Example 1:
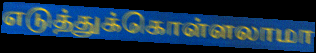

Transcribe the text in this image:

எடுத்துக்கொள்ளலாமா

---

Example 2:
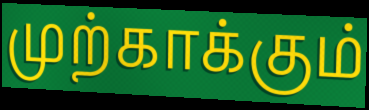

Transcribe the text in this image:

முற்காக்கும்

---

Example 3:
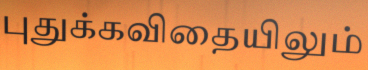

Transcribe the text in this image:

புதுக்கவிதையிலும்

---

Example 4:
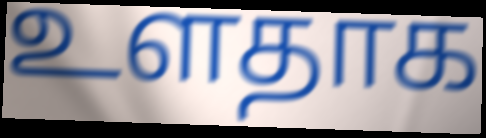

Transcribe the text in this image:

உளதாக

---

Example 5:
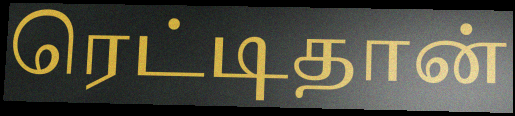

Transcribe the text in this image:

ரெட்டிதான்